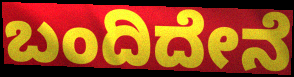
ಬಂದಿದೇನೆ